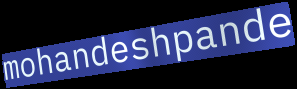
mohandeshpande